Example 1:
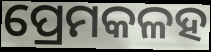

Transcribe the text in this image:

ପ୍ରେମକଳହ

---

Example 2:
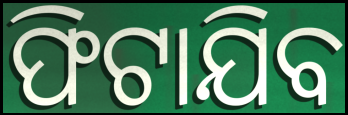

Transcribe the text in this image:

ଫିଟାଯିବ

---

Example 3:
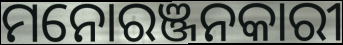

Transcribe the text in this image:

ମନୋରଞ୍ଜନକାରୀ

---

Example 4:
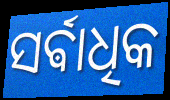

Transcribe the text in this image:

ସର୍ଵାଧିକ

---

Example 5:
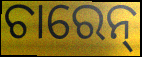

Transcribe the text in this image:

ଚାରେନ୍